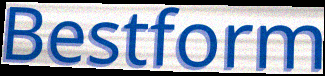
Bestform